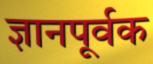
ज्ञानपूर्वक